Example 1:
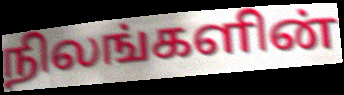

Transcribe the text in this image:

நிலங்களின்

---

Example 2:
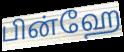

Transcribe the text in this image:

பின்ஹே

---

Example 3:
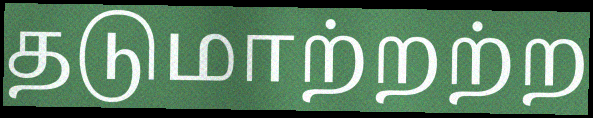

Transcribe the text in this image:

தடுமாற்றற்ற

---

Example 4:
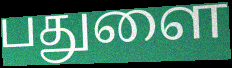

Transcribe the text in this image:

பதுளை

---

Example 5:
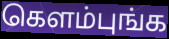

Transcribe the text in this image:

கெளம்புங்க